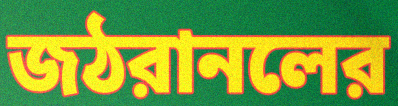
জঠরানলের